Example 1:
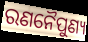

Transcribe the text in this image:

ରଣନୈପୁଣ୍ୟ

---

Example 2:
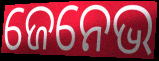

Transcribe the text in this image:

ଜେନେଭ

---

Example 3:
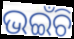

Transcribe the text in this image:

ଭଇଁଚି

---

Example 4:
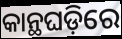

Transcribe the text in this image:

କାନ୍ଥଘଡ଼ିରେ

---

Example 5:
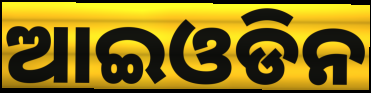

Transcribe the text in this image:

ଆଇଓଡିନ